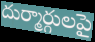
దుర్మార్గులపై